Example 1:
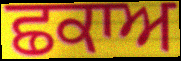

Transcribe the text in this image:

ਛਕਾਅ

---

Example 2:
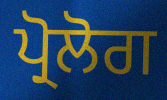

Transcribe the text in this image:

ਪ੍ਰੋਲੋਗ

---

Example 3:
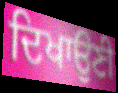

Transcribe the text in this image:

ਦਿਖਾਉਣੀ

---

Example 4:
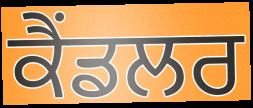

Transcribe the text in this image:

ਕੈਂਡਲਰ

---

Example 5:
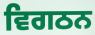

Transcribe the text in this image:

ਵਿਗਠਨ